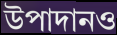
উপাদানও